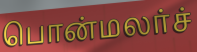
பொன்மலர்ச்